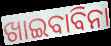
ଖାଇବାବିନା